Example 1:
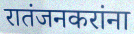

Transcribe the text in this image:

रातंजनकरांना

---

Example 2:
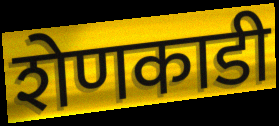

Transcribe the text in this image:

शेणकाडी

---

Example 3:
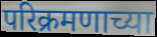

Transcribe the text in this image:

परिक्रमणाच्या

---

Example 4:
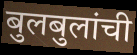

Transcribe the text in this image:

बुलबुलांची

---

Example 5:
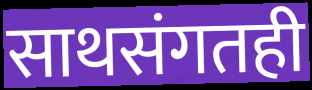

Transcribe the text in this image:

साथसंगतही